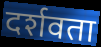
दर्शवता